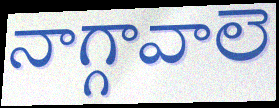
నాగ్గావాలె